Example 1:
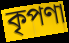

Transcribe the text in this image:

কৃপণা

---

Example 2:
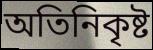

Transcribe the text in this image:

অতিনিকৃষ্ট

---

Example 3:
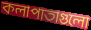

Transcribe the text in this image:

কলাপাতাগুলো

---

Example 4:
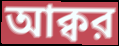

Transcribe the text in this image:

আক্বর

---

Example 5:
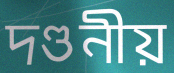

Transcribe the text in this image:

দণ্ডনীয়